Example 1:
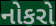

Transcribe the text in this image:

નોકરો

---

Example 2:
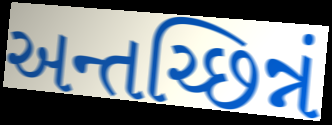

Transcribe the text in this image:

અન્તચ્છિન્નં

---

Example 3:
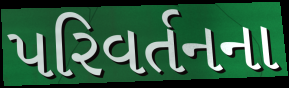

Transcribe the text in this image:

પરિવર્તનના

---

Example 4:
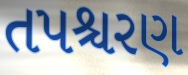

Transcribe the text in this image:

તપશ્ચરણ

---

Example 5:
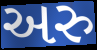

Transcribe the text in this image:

અરુ